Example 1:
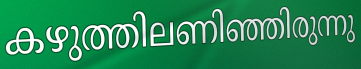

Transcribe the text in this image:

കഴുത്തിലണിഞ്ഞിരുന്നു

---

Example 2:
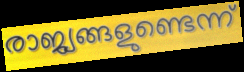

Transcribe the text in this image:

രാജ്യങ്ങളുണ്ടെന്ന്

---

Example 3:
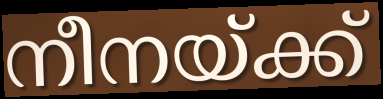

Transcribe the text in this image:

നീനയ്ക്ക്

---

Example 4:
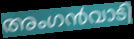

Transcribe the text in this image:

അംഗൻവാടി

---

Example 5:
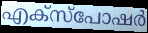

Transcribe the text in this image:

എക്സ്പോഷർ